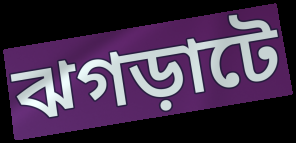
ঝগড়াটে